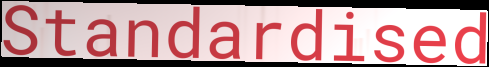
Standardised